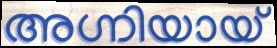
അഗ്നിയായ്